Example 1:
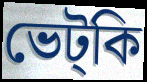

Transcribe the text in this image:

ভেট্কি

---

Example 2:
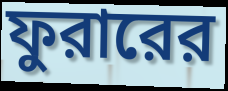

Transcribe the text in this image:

ফুরারের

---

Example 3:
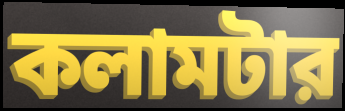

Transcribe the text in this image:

কলামটার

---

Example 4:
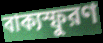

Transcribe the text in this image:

বাক্যস্ফুরণ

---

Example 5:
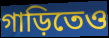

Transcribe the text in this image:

গাড়িতেও